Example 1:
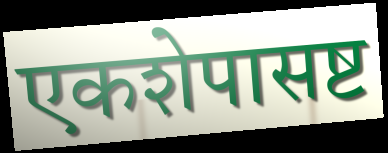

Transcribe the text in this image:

एकशेपासष्ट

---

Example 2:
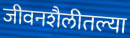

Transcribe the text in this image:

जीवनशैलीतल्या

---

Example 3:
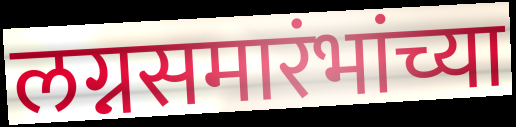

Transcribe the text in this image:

लग्नसमारंभांच्या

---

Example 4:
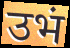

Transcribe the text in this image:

उभं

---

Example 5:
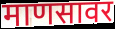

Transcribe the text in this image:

माणसावर